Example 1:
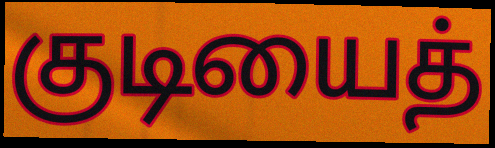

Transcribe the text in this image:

குடியைத்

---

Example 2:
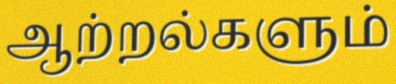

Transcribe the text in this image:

ஆற்றல்களும்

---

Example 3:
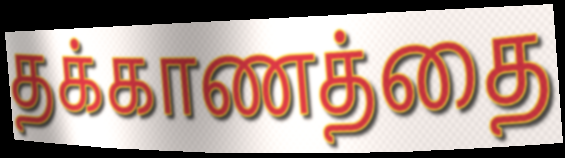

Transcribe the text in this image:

தக்காணத்தை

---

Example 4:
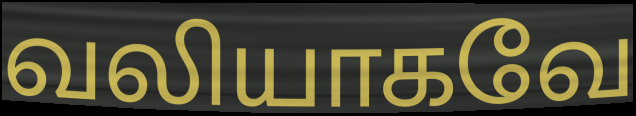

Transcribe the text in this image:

வலியாகவே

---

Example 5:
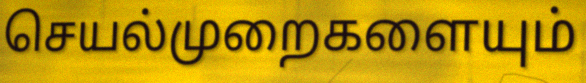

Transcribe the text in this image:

செயல்முறைகளையும்